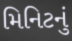
મિનિટનું